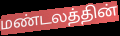
மண்டலத்தின்